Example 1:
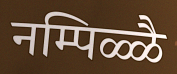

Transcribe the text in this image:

नम्पिळ्ळै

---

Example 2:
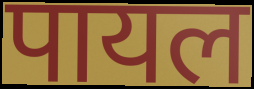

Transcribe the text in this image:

पायल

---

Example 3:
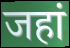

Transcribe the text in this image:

जहां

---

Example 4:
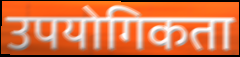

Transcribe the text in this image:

उपयोगिकता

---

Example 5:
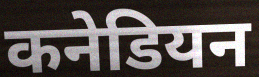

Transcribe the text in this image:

कनेडियन